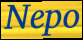
Nepo